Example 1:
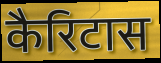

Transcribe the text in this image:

कैरिटास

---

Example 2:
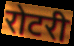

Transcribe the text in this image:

रोटरी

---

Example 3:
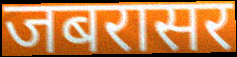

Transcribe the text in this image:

जबरासर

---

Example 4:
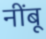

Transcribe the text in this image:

नींबू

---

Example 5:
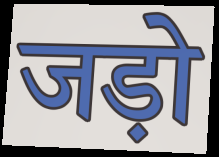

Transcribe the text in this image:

जड़ो